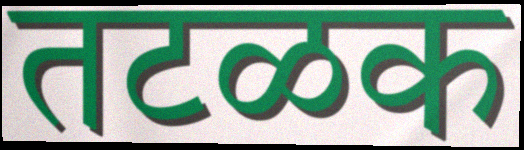
तटळक